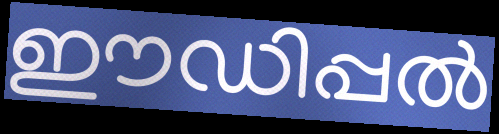
ഈഡിപ്പൽ